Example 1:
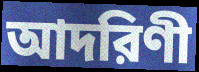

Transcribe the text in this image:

আদরিণী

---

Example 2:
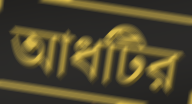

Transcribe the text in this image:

আধটির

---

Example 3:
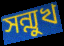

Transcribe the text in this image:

সন্মুখ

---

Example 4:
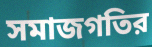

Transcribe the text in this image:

সমাজগতির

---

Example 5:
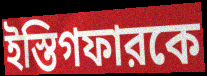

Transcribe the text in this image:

ইস্তিগফারকে